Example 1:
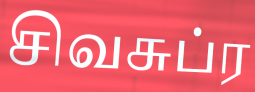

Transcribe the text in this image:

சிவசுப்ர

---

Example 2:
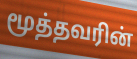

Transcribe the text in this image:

மூத்தவரின்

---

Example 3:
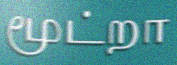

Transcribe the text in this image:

மூட்றா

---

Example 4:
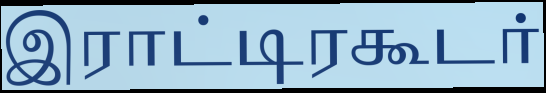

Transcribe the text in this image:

இராட்டிரகூடர்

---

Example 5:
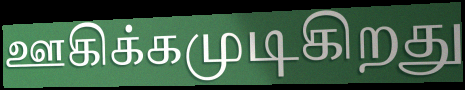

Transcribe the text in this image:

ஊகிக்கமுடிகிறது